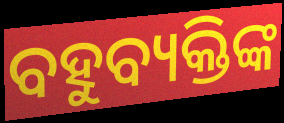
ବହୁବ୍ୟକ୍ତିଙ୍କ